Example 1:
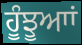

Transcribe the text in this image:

ਹੂੰਝੂਆਾਂ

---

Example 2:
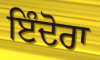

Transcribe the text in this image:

ਇੰਦੋਰਾ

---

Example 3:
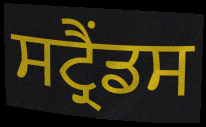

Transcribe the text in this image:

ਸਟ੍ਰੈਂਡਸ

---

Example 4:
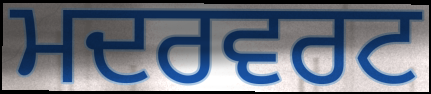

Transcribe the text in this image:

ਮਦਰਵਰਟ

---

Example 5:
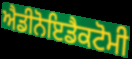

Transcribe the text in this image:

ਐਡੀਨੋਇਡੈਕਟੋਮੀ